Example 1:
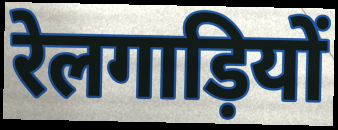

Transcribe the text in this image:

रेलगाड़ियों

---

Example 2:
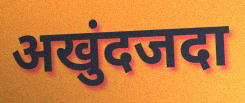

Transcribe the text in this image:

अखुंदजदा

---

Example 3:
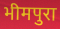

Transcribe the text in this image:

भीमपुरा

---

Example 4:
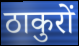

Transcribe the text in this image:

ठाकुरों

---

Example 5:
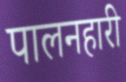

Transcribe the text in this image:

पालनहारी